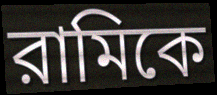
রামিকে